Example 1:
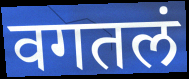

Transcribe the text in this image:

वगतलं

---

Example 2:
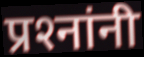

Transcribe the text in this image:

प्रश्नांनी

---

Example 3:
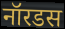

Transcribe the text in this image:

नॉरडस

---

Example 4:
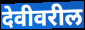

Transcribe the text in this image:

देवीवरील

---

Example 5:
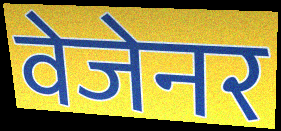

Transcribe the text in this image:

वेजेनर